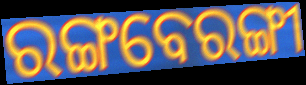
ରଙ୍ଗବେରଙ୍ଗୀ